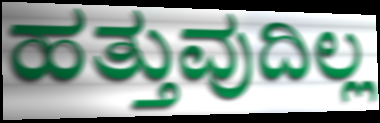
ಹತ್ತುವುದಿಲ್ಲ